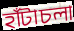
হাঁটাচলা